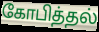
கோபித்தல்